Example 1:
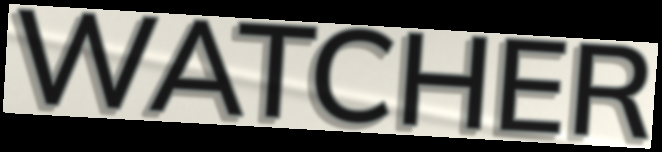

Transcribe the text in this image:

WATCHER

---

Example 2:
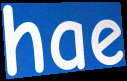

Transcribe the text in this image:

hae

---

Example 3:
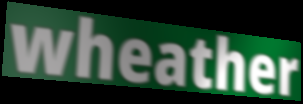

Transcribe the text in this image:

wheather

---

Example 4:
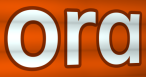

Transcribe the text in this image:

ora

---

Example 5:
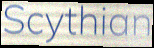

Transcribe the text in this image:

Scythian